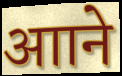
आाने